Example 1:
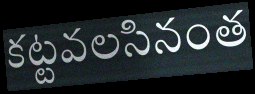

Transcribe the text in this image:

కట్టవలసినంత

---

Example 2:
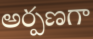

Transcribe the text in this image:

అర్పణగా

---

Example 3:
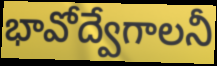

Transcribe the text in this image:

భావోద్వేగాలనీ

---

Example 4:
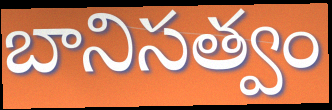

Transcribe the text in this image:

బానిసత్వం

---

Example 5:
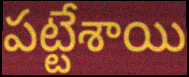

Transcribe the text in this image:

పట్టేశాయి